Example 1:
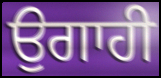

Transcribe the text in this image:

ਉਗਾਹੀ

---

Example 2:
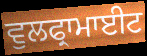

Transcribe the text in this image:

ਵੁਲਫ੍ਰਾਮਾਈਟ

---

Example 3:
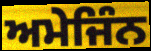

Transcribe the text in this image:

ਅਮੇਜਿੰਨ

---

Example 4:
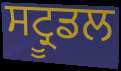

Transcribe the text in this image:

ਸਟ੍ਰੂਡਲ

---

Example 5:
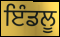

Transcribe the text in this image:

ਇੰਡਲੂ